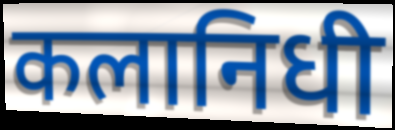
कलानिधी